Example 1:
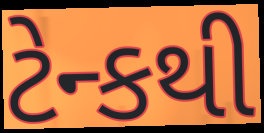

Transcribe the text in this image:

ટેન્કથી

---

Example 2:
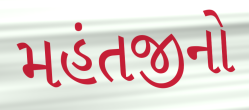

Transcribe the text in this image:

મહંતજીનો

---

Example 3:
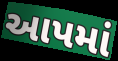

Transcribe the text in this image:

આપમાં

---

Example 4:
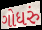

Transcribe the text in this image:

ગોધરું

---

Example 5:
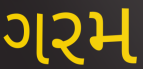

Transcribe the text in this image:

ગરમ